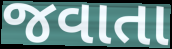
જવાતા